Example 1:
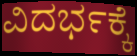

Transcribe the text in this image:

ವಿದರ್ಭಕ್ಕೆ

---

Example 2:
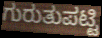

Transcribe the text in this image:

ಗುರುತುಪಟ್ಟಿ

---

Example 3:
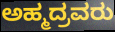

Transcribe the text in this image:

ಅಹ್ಮದ್ರವರು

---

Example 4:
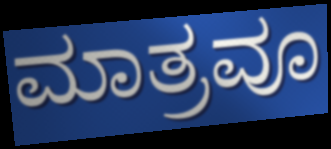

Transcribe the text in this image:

ಮಾತ್ರವೂ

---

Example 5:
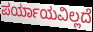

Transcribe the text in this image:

ಪರ್ಯಾಯವಿಲ್ಲದೆ